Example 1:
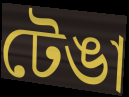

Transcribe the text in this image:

টেঙা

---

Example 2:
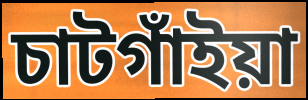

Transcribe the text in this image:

চাটগাঁইয়া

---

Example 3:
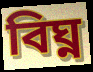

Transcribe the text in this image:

বিঘ্ন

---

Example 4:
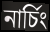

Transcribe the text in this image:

নাৰ্চিং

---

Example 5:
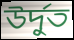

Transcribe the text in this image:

উৰ্দুত